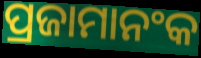
ପ୍ରଜାମାନଂକ